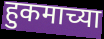
हुकमाच्या